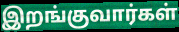
இறங்குவார்கள்